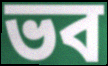
ভব